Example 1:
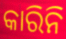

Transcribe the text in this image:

କାରିନି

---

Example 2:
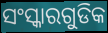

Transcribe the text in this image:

ସଂସ୍କାରଗୁଡିକ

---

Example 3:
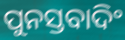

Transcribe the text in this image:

ପୁନସ୍ତବାଦିଂ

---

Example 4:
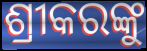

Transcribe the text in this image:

ଶ୍ରୀକରଙ୍କୁ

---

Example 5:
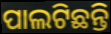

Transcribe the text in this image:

ପାଲଟିଛନ୍ତି